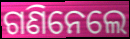
ଗଣିନେଲେ